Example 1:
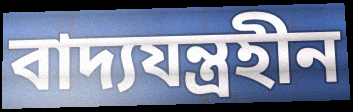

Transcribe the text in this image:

বাদ্যযন্ত্ৰহীন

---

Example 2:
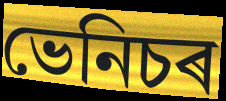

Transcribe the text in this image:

ভেনিচৰ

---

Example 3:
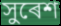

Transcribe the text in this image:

সুৰেশ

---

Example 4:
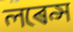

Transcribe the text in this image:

লৰেন্স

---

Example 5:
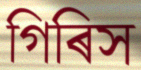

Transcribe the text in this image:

গিৰিস